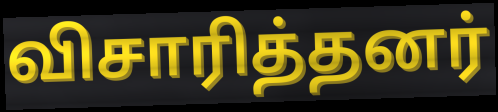
விசாரித்தனர்